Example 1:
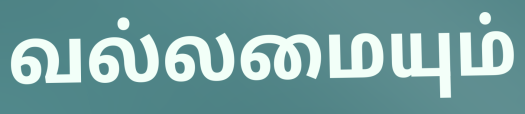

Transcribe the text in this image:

வல்லமையும்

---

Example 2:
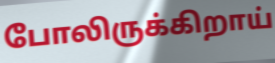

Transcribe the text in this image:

போலிருக்கிறாய்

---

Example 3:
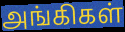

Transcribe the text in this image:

அங்கிகள்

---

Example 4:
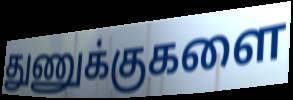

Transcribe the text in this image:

துணுக்குகளை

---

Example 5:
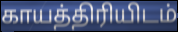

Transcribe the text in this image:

காயத்திரியிடம்